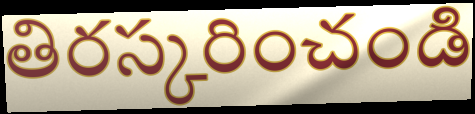
తిరస్కరించండి